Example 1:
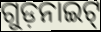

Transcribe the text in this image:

ଗୁଡ଼ନାଇଟ୍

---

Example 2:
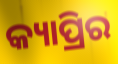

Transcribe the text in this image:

କ୍ୟାପ୍ରିର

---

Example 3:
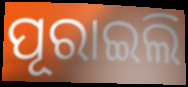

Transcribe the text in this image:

ପୂରାଇଲି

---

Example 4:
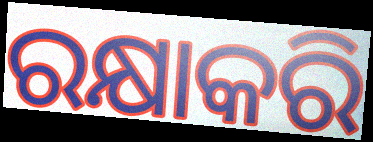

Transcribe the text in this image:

ରକ୍ଷାକରି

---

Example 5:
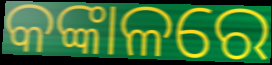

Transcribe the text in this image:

କଙ୍କାଳରେ